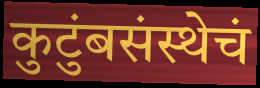
कुटुंबसंस्थेचं